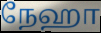
நேஹா